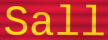
Sall